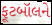
ફૂટબૉલને